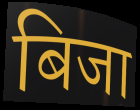
बिजा